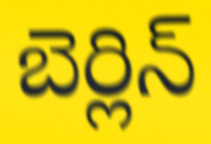
బెర్లిన్